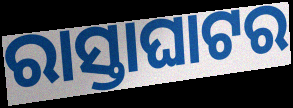
ରାସ୍ତାଘାଟର